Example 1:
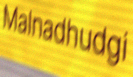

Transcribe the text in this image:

Malnadhudgi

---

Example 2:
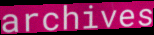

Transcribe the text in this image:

archives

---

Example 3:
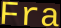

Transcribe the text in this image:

Fra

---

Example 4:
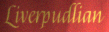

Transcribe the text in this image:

Liverpudlian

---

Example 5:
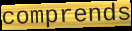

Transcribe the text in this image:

comprends